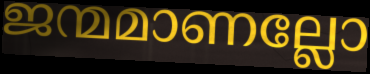
ജന്മമാണല്ലോ